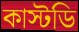
কাস্টডি